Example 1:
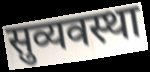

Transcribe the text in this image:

सुव्यवस्था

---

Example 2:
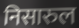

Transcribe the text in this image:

निसारुल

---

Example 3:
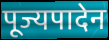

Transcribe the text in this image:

पूज्यपादेन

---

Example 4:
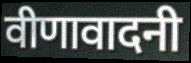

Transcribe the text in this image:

वीणावादनी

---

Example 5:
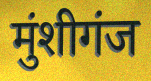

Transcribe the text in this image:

मुंशीगंज